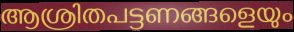
ആശ്രിതപട്ടണങ്ങളെയും